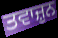
ਤਵਾਜ਼ੁਨ